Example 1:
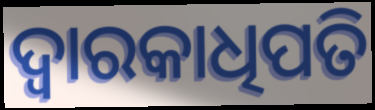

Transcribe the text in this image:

ଦ୍ୱାରକାଧିପତି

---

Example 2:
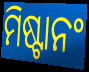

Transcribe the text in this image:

ମିଷ୍ଟାନଂ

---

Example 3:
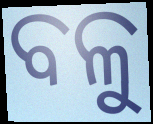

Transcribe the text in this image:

ବଳୁ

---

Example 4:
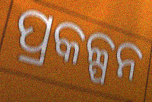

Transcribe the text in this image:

ପ୍ରକଳ୍ପନ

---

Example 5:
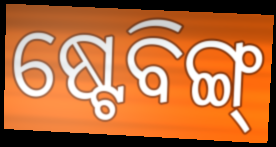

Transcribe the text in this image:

ଷ୍ଟେବିଙ୍ଗ୍